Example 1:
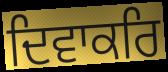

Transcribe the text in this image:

ਦਿਵਾਕਰਿ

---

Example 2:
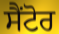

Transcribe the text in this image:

ਸੈਂਟੋਰ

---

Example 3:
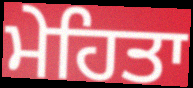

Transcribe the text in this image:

ਮੇਹਿਤਾ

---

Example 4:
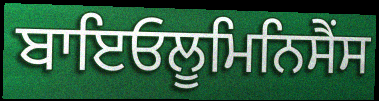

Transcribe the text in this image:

ਬਾਇਓਲੂਮਿਨਿਸੈਂਸ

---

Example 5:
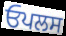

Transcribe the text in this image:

ਓਪਲਸ